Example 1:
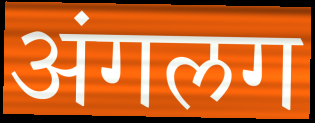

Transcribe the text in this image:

अंगलग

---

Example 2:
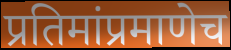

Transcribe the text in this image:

प्रतिमांप्रमाणेच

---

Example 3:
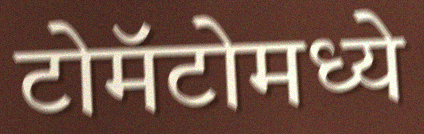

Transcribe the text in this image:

टोमॅटोमध्ये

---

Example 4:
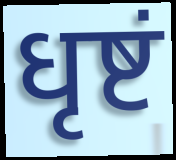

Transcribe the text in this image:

धृष्टं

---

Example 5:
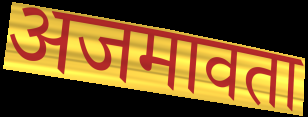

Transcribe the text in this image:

अजमावता